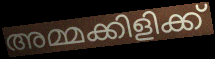
അമ്മക്കിളിക്ക്